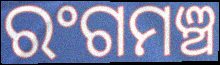
ରଂଗମଞ୍ଚ